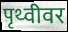
पृथ्वीवर